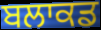
ਬਲਾਕਡ